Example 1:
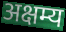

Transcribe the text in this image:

अक्षम्‍य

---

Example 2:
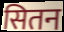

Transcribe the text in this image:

सितन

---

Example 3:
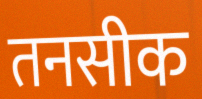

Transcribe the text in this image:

तनसीक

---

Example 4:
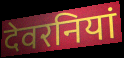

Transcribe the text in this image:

देवरनियां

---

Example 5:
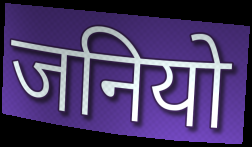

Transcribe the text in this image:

जनियो